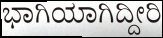
ಭಾಗಿಯಾಗಿದ್ದೀರಿ